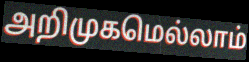
அறிமுகமெல்லாம்